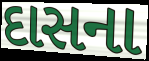
દાસના